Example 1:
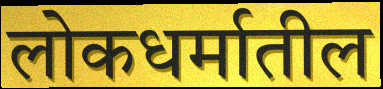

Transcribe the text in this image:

लोकधर्मातील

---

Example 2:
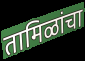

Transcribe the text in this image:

तामिळांचा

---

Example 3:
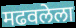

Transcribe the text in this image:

मढवलेला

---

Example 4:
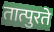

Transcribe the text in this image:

तात्पुरते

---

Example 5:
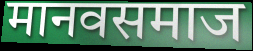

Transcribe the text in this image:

मानवसमाज